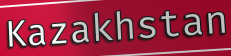
Kazakhstan